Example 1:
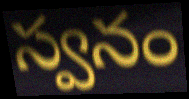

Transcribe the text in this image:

స్వనం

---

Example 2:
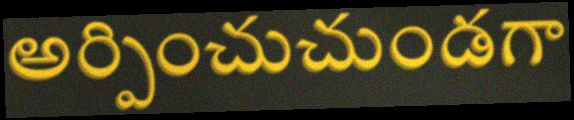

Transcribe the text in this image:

అర్పించుచుండగా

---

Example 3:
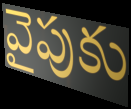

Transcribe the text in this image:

వైపుకు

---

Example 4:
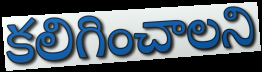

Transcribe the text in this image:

కలిగించాలని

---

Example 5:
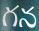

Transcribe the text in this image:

గన